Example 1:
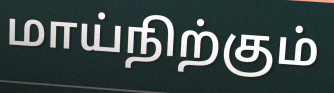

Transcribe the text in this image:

மாய்நிற்கும்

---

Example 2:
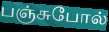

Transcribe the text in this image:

பஞ்சுபோல்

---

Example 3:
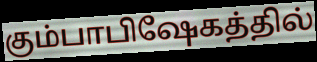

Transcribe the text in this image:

கும்பாபிஷேகத்தில்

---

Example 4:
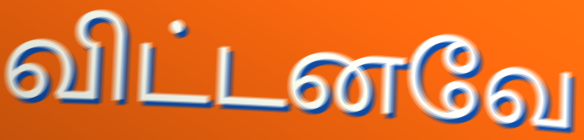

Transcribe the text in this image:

விட்டனவே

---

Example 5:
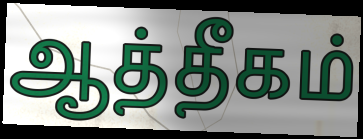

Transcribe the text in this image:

ஆத்தீகம்